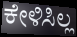
ಕೇಳಿಸಿಲ್ಲ